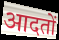
आदतों